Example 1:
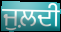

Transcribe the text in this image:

ਜੁਲ਼ਦੀ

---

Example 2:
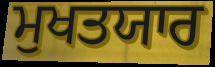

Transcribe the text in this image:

ਮੁਖਤਯਾਰ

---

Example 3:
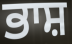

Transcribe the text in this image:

ਭਾਸ਼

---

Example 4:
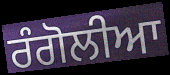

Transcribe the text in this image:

ਰੰਗੋਲੀਆ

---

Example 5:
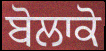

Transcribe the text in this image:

ਬੋਲਾਕੋ